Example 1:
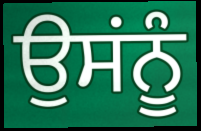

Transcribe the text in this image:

ਉਸਂਨੂੰ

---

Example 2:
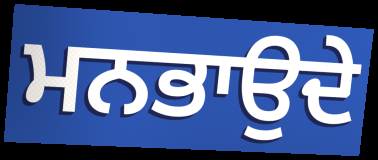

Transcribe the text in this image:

ਮਨਭਾਉਦੇ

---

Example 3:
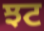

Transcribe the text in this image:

ਝਟ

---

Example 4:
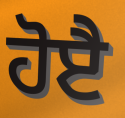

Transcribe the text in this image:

ਹੋੲੈ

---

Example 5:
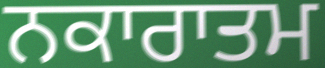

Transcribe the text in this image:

ਨਕਾਰਾਤਮ